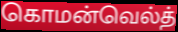
கொமன்வெல்த்